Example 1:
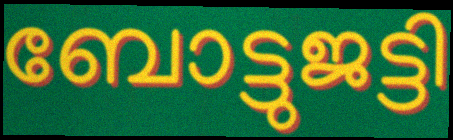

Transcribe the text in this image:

ബോട്ടുജട്ടി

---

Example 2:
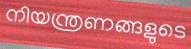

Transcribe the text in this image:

നിയന്ത്രണങ്ങളുടെ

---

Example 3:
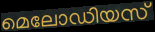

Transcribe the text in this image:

മെലോഡിയസ്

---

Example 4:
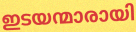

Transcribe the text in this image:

ഇടയന്മാരായി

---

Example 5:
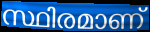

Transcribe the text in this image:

സ്ഥിരമാണ്